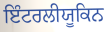
ਇੰਟਰਲੀਯੂਕਿਨ